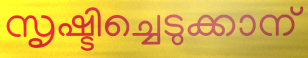
സൃഷ്ടിച്ചെടുക്കാന്